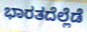
ಭಾರತದೆಲ್ಲೆಡೆ